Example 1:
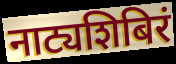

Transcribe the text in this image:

नाट्यशिबिरं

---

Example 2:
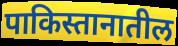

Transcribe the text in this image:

पाकिस्तानातील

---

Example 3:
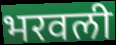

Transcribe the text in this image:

भरवली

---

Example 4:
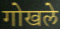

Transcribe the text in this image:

गोखले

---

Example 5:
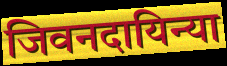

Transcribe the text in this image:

जिवनदायिन्या